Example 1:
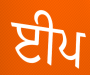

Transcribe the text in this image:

ਈਪ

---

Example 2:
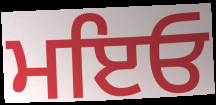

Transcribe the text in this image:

ਮਇਓ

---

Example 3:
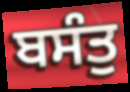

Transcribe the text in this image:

ਬਸੰਤੁ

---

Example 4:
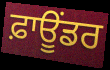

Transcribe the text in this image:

ਫ਼ਾਊਂਡਰ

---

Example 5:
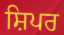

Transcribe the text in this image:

ਸ਼ਿਪਰ